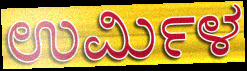
ಉರ್ಮಿಳ